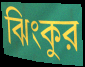
ঝিংকুর